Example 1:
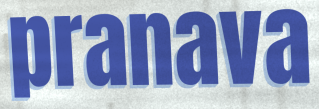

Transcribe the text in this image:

pranava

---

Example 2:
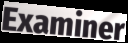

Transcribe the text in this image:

Examiner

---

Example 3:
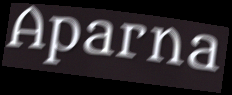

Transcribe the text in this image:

Aparna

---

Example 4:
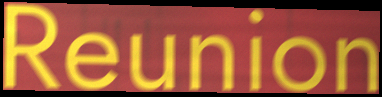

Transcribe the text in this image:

Reunion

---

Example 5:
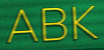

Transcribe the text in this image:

ABK